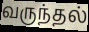
வருந்தல்